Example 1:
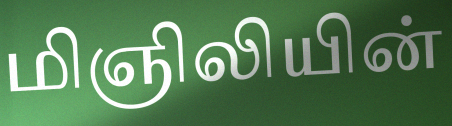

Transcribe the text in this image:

மிஞிலியின்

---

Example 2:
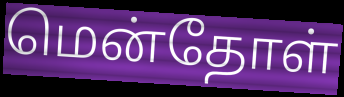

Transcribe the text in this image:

மென்தோள்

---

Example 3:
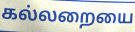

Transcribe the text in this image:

கல்லறையை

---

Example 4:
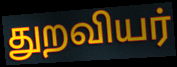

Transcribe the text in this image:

துறவியர்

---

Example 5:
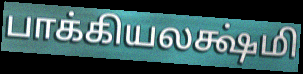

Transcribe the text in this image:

பாக்கியலக்ஷ்மி